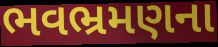
ભવભ્રમણના